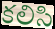
కలిసి